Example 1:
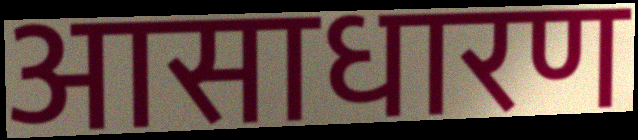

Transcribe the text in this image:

आसाधारण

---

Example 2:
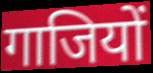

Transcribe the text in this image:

गाजियों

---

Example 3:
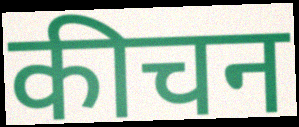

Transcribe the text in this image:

कीचन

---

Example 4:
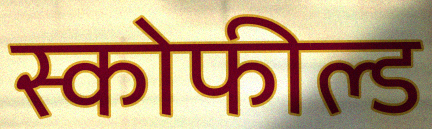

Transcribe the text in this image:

स्कोफील्ड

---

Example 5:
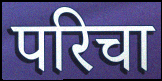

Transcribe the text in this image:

परिचा